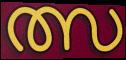
ത്സ